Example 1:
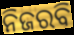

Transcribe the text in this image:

ନିଜରବି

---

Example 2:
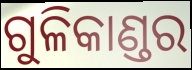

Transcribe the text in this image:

ଗୁଳିକାଣ୍ଡର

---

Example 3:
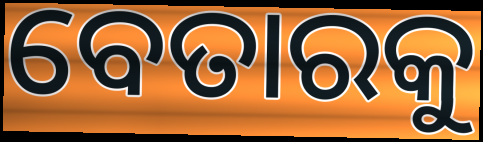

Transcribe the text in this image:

ବେତାରକୁ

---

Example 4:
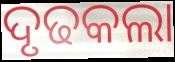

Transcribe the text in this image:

ଦୃଢକଲା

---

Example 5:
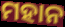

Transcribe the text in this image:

ମହାନ